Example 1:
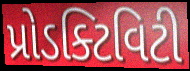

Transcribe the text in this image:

પ્રોડક્ટિવિટી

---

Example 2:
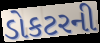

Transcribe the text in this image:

ડોકટરની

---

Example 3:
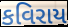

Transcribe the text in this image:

કવિરાય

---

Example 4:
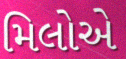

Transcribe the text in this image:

મિલોએ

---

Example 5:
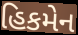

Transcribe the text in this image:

હિકમેન